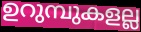
ഉറുമ്പുകളല്ല